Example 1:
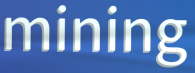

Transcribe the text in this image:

mining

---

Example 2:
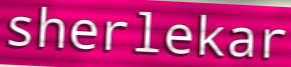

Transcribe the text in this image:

sherlekar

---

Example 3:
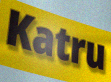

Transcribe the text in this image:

Katru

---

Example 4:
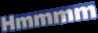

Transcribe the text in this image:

Hmmmm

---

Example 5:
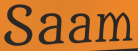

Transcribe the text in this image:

Saam